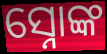
ସ୍ନୋଙ୍କ